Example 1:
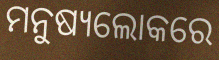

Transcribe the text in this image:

ମନୁଷ୍ୟଲୋକରେ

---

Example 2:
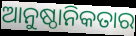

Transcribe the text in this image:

ଆନୁଷ୍ଠାନିକତାର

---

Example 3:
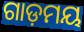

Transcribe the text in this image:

ଗାଡ଼ମୟ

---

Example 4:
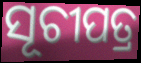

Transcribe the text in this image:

ସୂଚୀପତ୍ର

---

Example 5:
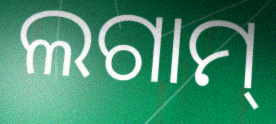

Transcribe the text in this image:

ଲଗାମ୍